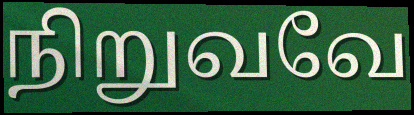
நிறுவவே